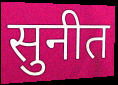
सुनीत